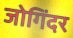
जोगिंदर